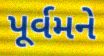
પૂર્વમને